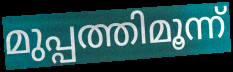
മുപ്പത്തിമൂന്ന്